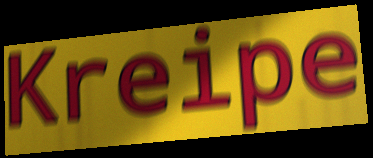
Kreipe